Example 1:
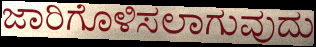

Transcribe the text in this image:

ಜಾರಿಗೊಳಿಸಲಾಗುವುದು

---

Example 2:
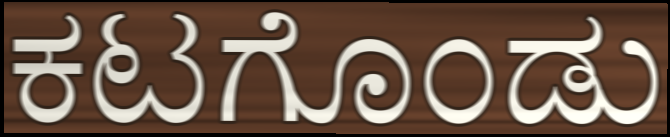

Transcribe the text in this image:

ಕಟಗೊಂಡು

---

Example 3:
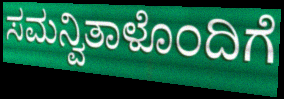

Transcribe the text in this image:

ಸಮನ್ವಿತಾಳೊಂದಿಗೆ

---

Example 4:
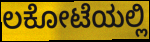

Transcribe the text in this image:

ಲಕೋಟೆಯಲ್ಲಿ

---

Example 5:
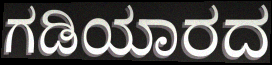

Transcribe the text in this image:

ಗಡಿಯಾರದ